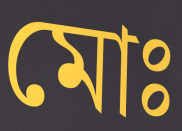
মোঃ